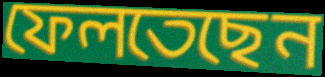
ফেলতেছেন